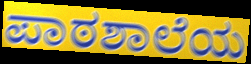
ಪಾಠಶಾಲೆಯ